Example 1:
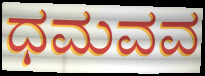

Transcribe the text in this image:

ಧಮವವ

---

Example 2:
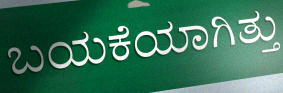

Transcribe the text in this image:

ಬಯಕೆಯಾಗಿತ್ತು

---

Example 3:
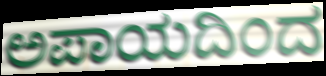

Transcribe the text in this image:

ಅಪಾಯದಿಂದ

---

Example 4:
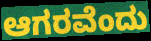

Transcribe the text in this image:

ಆಗರವೆಂದು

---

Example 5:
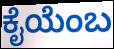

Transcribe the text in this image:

ಕೈಯೆಂಬ